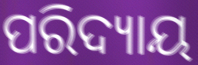
ପରିଦ୍ୟାୟ